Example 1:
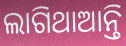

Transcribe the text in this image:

ଲାଗିଥାଆନ୍ତି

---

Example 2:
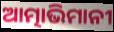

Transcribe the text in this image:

ଆତ୍ମାଭିମାନୀ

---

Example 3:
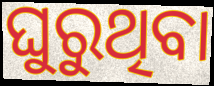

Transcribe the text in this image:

ଘୁରୁଥିବା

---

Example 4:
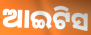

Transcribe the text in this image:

ଆଇଟିସ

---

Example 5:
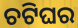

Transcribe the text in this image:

ଚଟିଘର